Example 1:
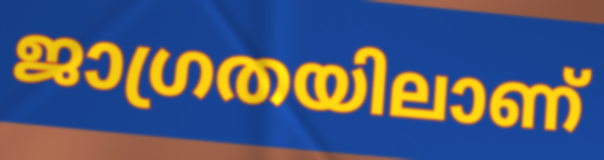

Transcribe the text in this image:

ജാഗ്രതയിലാണ്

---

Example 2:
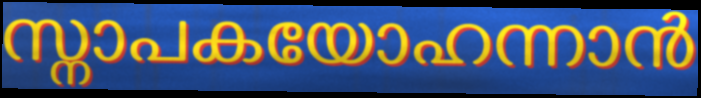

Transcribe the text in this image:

സ്നാപകയോഹന്നാൻ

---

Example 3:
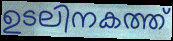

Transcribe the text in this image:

ഉടലിനകത്ത്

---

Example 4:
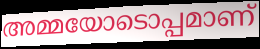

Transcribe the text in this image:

അമ്മയോടൊപ്പമാണ്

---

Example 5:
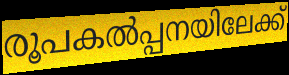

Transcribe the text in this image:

രൂപകൽപ്പനയിലേക്ക്